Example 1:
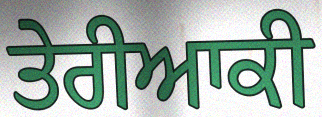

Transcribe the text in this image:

ਤੇਰੀਆਕੀ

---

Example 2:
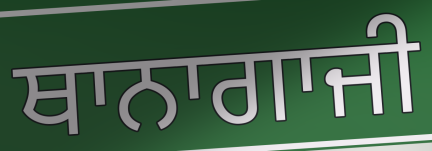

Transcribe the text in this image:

ਥਾਨਾਗਾਜੀ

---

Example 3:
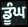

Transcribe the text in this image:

ਡੂੰਘ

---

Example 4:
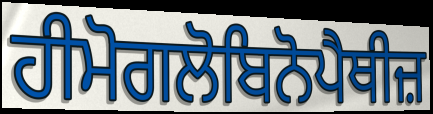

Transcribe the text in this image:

ਹੀਮੋਗਲੋਬਿਨੋਪੈਥੀਜ਼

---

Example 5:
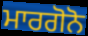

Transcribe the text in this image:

ਮਾਰਗੋਨੋ